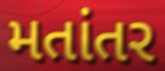
મતાંતર